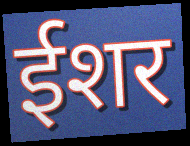
ईशर